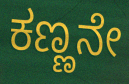
ಕಣ್ಣನೇ